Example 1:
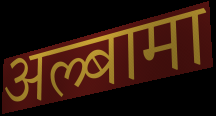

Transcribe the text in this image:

अल्बामा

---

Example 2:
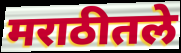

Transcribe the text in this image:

मराठीतले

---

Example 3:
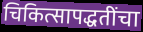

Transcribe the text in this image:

चिकित्सापद्धतींचा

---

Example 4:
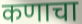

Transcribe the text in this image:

कणाचा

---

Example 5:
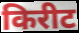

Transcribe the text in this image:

किरीट